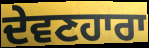
ਦੇਵਣਹਾਰਾ